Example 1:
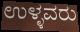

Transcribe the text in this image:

ಉಳ್ಳವರು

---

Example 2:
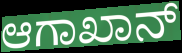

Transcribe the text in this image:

ಆಗಾಖಾನ್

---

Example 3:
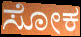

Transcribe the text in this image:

ಸೋಕ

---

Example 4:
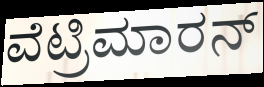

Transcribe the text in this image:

ವೆಟ್ರಿಮಾರನ್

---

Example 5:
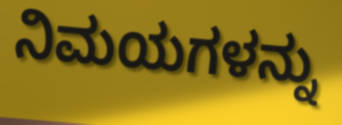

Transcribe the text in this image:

ನಿಮಯಗಳನ್ನು